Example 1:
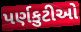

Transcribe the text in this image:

પર્ણકુટીઓ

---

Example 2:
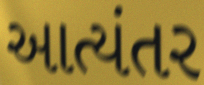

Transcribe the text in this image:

આત્યંતર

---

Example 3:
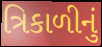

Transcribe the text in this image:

ત્રિકાળીનું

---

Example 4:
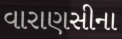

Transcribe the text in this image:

વારાણસીના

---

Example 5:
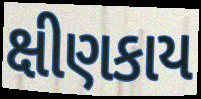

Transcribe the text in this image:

ક્ષીણકાય